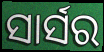
ସାର୍ସର